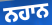
ਨਹਾਨ